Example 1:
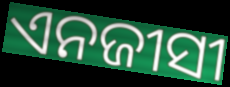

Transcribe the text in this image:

ଏନଜୀସୀ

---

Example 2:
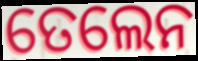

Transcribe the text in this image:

ତେଲେନ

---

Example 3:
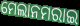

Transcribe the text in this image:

ମେଲାନମରାଇ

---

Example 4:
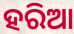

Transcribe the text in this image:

ହରିଆ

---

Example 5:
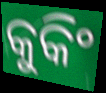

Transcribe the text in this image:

କୁକିଂ